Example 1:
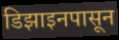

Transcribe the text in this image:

डिझाइनपासून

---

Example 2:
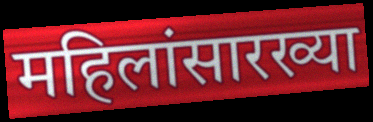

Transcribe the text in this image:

महिलांसारख्या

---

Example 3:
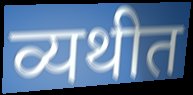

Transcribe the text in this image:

व्यथीत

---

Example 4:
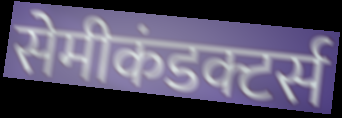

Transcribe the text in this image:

सेमीकंडक्टर्स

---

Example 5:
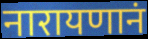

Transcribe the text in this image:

नारायणानं